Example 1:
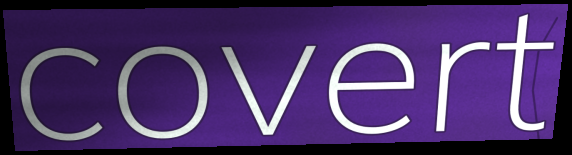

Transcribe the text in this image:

covert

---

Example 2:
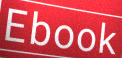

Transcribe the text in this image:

Ebook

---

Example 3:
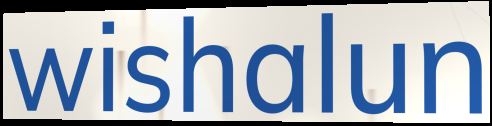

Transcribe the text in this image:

wishalun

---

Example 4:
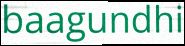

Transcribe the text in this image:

baagundhi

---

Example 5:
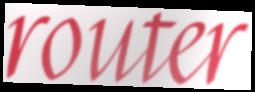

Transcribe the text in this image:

router